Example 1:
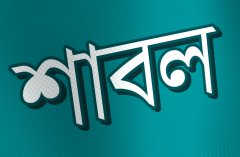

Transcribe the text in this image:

শাবল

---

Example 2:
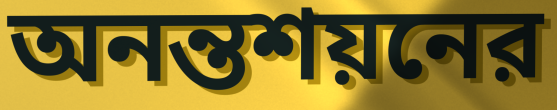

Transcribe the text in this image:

অনন্তশয়নের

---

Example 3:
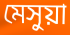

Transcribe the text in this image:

মেসুয়া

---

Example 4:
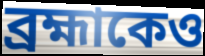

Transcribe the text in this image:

ব্রহ্মাকেও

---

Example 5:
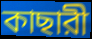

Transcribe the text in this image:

কাছারী